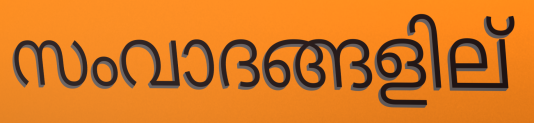
സംവാദങ്ങളില്